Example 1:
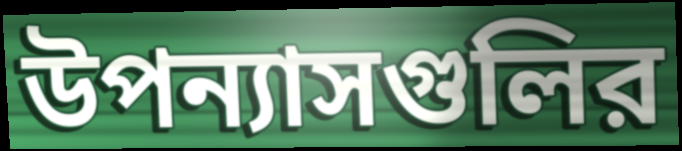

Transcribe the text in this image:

উপন্যাসগুলির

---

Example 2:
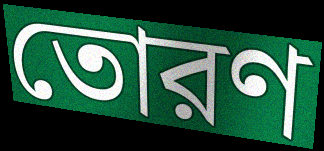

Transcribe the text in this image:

তোরণ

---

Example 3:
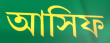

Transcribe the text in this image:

আসিফ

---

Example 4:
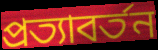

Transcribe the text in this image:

প্রত্যাবর্তন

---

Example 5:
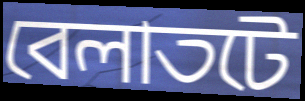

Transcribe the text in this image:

বেলাতটে